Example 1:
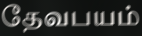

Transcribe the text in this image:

தேவபயம்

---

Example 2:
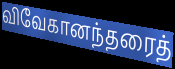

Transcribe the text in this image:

விவேகானந்தரைத்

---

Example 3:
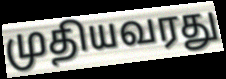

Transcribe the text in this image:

முதியவரது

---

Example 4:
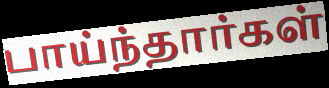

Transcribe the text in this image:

பாய்ந்தார்கள்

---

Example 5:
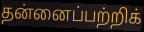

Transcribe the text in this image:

தன்னைப்பற்றிக்